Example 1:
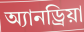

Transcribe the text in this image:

অ্যানড্রিয়া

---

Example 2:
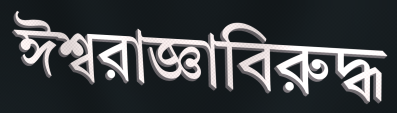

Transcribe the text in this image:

ঈশ্বরাজ্ঞাবিরুদ্ধ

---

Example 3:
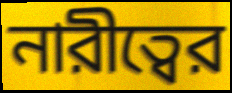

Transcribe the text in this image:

নারীত্বের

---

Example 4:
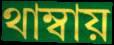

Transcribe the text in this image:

থাম্বায়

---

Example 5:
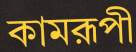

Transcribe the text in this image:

কামরূপী